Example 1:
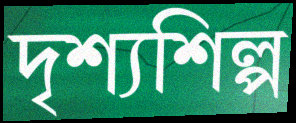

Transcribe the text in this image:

দৃশ্যশিল্প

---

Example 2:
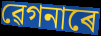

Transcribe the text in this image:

ৱেগনাৰে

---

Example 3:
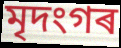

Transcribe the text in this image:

মৃদংগৰ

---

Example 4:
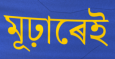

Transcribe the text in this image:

মূঢ়াৰেই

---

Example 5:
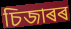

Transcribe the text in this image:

চিজাৰৰ